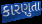
કારણુતા